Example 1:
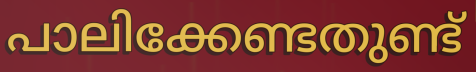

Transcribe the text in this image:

പാലിക്കേണ്ടതുണ്ട്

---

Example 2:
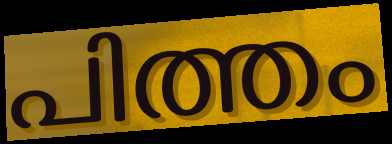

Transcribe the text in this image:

പിത്തം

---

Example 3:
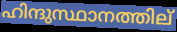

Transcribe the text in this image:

ഹിന്ദുസ്ഥാനത്തില്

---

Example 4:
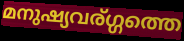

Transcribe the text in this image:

മനുഷ്യവര്ഗ്ഗത്തെ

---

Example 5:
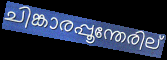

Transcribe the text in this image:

ചിങ്കാരപ്പൂന്തേരില്